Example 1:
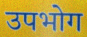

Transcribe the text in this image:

उपभोग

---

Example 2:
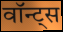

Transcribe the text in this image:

वॉन्ट्स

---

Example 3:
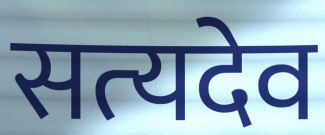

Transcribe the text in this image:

सत्‍यदेव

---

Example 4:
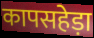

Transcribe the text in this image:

कापसहेड़ा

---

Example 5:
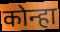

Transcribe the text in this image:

कोन्हा